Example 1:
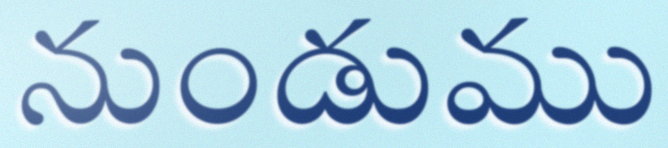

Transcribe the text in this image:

నుండుము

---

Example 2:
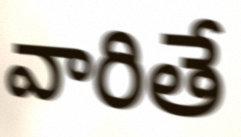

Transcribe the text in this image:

వారితే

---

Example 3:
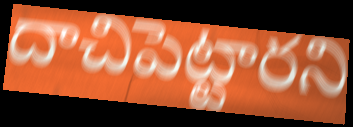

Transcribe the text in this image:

దాచిపెట్టారని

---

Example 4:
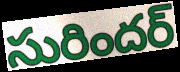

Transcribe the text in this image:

సురిందర్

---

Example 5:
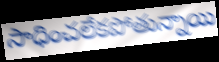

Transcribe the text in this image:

సాధించలేకపోతున్నాయి